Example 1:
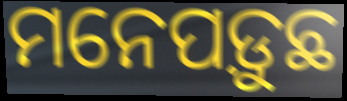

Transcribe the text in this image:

ମନେପଡ଼ୁଛ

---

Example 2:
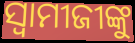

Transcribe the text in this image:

ସ୍ଵାମୀଜୀଙ୍କୁ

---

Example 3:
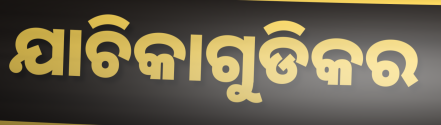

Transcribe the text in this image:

ଯାଚିକାଗୁଡିକର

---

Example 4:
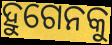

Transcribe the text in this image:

ହୁଗେନକୁ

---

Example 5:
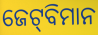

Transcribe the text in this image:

ଜେଟ୍‌ବିମାନ